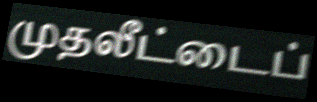
முதலீட்டைப்